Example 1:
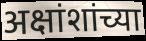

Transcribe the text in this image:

अक्षांशांच्या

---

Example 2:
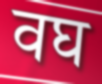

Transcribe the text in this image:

वघ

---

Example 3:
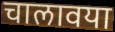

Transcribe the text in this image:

चालावया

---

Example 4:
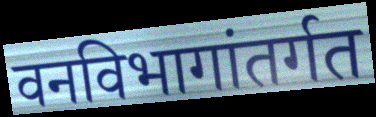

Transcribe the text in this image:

वनविभागांतर्गत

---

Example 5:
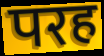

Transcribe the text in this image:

परह